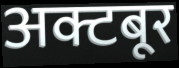
अक्टबूर